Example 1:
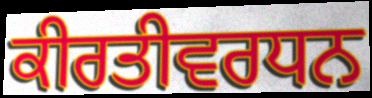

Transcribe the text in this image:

ਕੀਰਤੀਵਰਧਨ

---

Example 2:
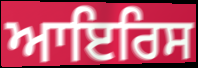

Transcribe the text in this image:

ਆਇਰਿਸ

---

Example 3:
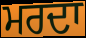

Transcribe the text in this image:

ਮਰਦਾ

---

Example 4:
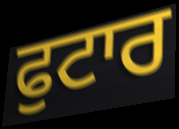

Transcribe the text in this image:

ਫੁਟਾਰ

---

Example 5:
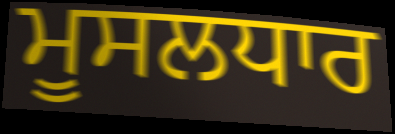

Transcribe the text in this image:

ਮੂਸਲਧਾਰ